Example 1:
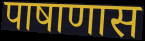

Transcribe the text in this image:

पाषाणास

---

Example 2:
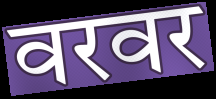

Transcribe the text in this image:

वरवर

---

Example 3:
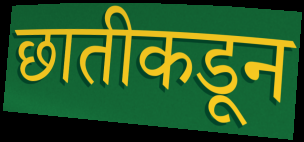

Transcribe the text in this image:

छातीकडून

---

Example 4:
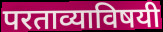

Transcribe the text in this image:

परताव्याविषयी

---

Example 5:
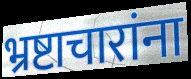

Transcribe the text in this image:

भ्रष्टाचारांना